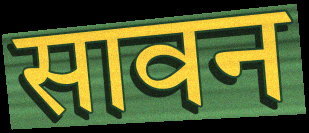
सावन